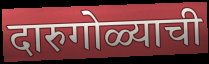
दारुगोळ्याची